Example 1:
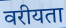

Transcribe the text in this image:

वरीयता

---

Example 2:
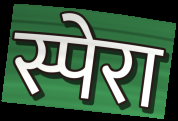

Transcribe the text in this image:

स्पेरा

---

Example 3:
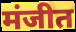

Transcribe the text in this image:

मंजीत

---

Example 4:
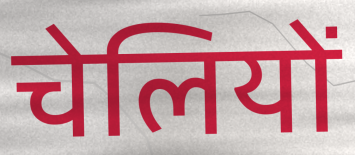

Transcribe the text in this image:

चेलियों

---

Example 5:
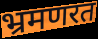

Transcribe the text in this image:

भ्रमणरत